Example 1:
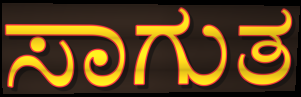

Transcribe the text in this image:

ಸಾಗುತ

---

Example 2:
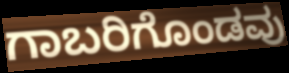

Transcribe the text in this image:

ಗಾಬರಿಗೊಂಡವು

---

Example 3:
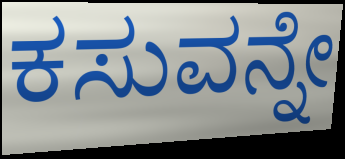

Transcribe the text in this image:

ಕಸುವನ್ನೇ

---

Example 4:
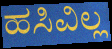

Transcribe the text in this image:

ಹಸಿವಿಲ್ಲ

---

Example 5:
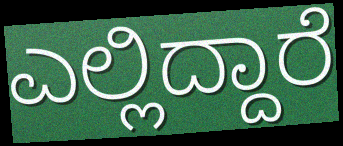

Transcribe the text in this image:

ಎಲ್ಲಿದ್ದಾರೆ